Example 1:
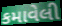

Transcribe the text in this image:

કમાવેલી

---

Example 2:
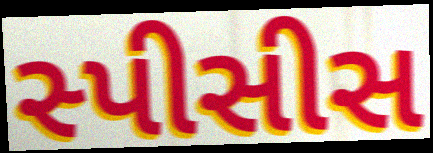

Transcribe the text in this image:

સ્પીસીસ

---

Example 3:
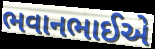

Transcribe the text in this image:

ભવાનભાઈએ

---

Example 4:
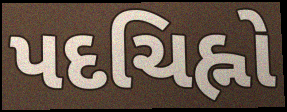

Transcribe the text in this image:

પદચિહ્નો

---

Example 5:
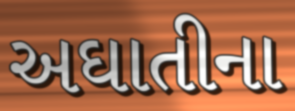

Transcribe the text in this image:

અઘાતીના